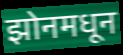
झोनमधून